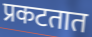
प्रकटतात